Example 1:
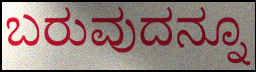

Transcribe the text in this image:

ಬರುವುದನ್ನೂ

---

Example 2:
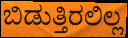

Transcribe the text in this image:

ಬಿಡುತ್ತಿರಲಿಲ್ಲ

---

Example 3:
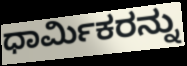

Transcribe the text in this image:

ಧಾರ್ಮಿಕರನ್ನು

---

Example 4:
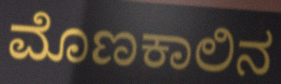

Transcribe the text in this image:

ಮೊಣಕಾಲಿನ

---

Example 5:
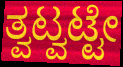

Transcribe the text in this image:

ತ್ವಟ್ವಟ್ಟೇ